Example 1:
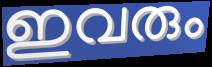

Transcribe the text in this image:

ഇവരും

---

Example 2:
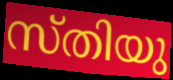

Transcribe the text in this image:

സ്തിയു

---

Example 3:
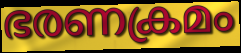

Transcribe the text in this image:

ഭരണക്രമം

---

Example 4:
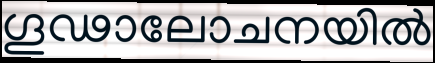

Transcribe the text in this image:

ഗൂഢാലോചനയിൽ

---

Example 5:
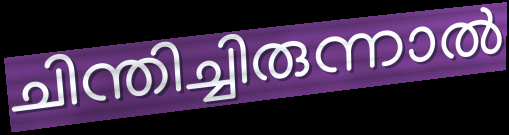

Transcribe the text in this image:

ചിന്തിച്ചിരുന്നാൽ